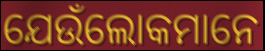
ଯେଉଁଲୋକମାନେ